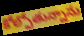
కోల్పోతున్నాను